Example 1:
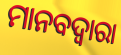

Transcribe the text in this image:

ମାନବଦ୍ୱାରା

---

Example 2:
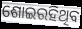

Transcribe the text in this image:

ଶୋଇରହିଥିବ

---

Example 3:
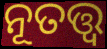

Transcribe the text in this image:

ନୂତତ୍ତ୍ବ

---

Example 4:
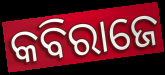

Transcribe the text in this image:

କବିରାଜେ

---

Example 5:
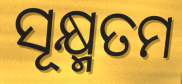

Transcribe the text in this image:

ସୂକ୍ଷ୍ମତମ